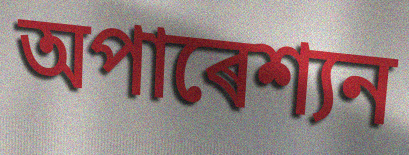
অপাৰেশ্যন